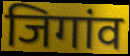
जिगांव